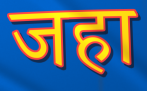
जहा